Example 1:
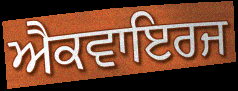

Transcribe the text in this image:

ਐਕਵਾਇਰਜ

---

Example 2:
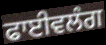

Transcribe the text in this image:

ਫਾਈਵਲੰਗ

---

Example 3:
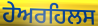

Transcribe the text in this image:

ਹੇਅਰਹਿਲਸ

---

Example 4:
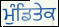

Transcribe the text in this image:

ਮੁੰਡਿਤੇਕ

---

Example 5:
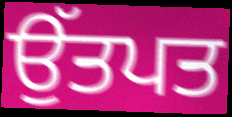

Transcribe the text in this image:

ਉੱਤਪਤ